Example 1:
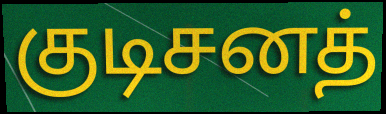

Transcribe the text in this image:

குடிசனத்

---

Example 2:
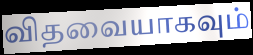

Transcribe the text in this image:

விதவையாகவும்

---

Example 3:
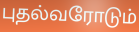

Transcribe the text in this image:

புதல்வரோடும்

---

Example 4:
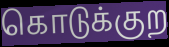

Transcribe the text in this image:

கொடுக்குற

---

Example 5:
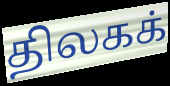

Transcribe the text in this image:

திலகக்